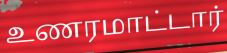
உணரமாட்டார்